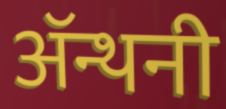
ॲन्थनी